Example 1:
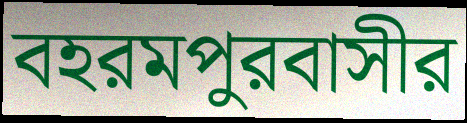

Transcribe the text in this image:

বহরমপুরবাসীর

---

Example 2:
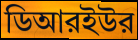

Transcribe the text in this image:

ডিআরইউর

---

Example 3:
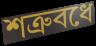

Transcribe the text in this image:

শত্রুবধে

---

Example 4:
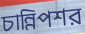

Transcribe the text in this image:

চান্নিপশর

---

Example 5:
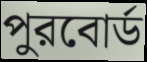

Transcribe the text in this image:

পুরবোর্ড